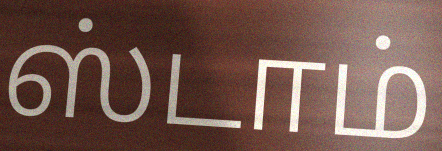
ஸ்டாம்